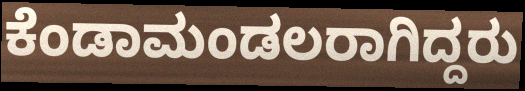
ಕೆಂಡಾಮಂಡಲರಾಗಿದ್ದರು